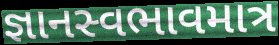
જ્ઞાનસ્વભાવમાત્ર